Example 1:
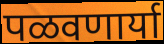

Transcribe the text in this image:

पळवणार्या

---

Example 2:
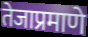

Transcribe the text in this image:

तेजाप्रमाणे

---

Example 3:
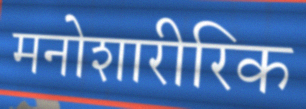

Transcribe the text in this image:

मनोशारीरिक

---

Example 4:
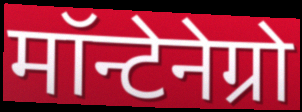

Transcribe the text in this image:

मॉन्टेनेग्रो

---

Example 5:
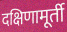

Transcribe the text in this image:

दक्षिणामूर्ती